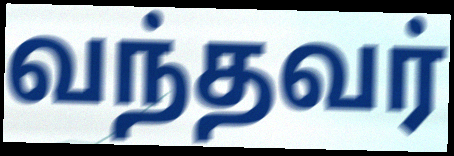
வந்தவர்